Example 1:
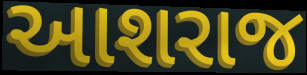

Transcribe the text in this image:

આશરાજ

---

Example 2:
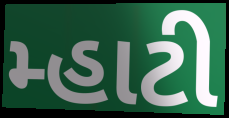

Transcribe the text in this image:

મ્હાટી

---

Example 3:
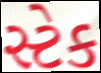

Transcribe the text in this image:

સ્ટેક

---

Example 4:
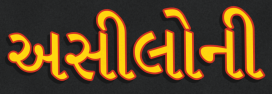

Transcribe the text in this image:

અસીલોની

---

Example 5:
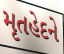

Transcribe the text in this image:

મૃતહેદને